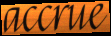
accrue